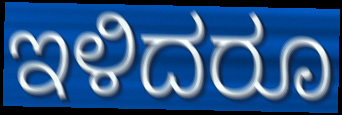
ಇಳಿದರೂ